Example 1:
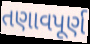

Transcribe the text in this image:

તણાવપૂર્ણ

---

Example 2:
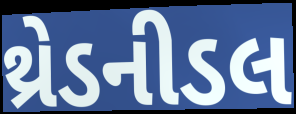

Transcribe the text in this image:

થ્રેડનીડલ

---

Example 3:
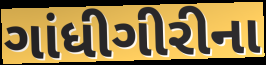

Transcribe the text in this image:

ગાંધીગીરીના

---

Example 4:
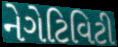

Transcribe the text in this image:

નેગેટિવિટી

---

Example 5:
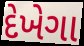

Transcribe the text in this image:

દેખેગા